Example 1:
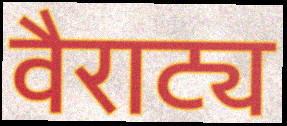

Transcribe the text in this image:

वैराट्य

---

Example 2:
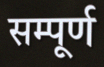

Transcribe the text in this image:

सम्‍पूर्ण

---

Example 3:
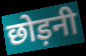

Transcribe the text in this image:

छोड़नी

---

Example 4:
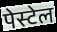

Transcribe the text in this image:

पेस्टेल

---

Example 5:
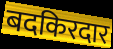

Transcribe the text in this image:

बदकिरदार